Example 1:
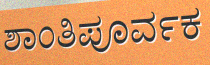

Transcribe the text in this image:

ಶಾಂತಿಪೂರ್ವಕ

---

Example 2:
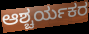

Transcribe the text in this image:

ಆಶ್ಚರ್ಯಕರ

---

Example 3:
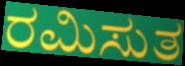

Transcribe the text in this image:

ರಮಿಸುತ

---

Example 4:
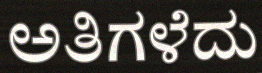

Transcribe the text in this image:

ಅತಿಗಳೆದು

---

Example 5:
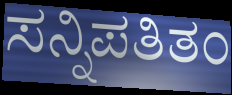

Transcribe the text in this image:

ಸನ್ನಿಪತಿತಂ